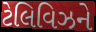
ટેલિવિઝને